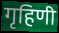
गृहिणी